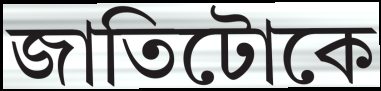
জাতিটোকে